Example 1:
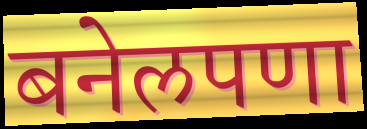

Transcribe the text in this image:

बनेलपणा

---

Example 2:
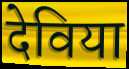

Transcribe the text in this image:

देविया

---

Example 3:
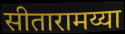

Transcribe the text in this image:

सीतारामय्या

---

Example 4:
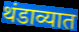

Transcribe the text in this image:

थंडाव्यात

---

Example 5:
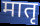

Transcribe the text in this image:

मातृ